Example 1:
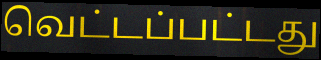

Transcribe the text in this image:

வெட்டப்பட்டது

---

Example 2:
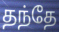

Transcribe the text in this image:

தந்தே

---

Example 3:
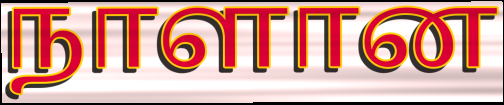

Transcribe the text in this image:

நாளான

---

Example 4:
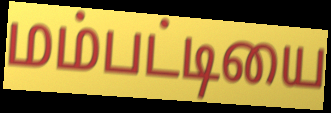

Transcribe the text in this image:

மம்பட்டியை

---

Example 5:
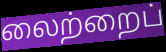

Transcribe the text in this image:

லைற்றைப்